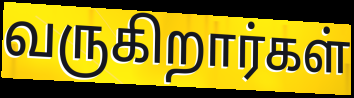
வருகிறார்கள்